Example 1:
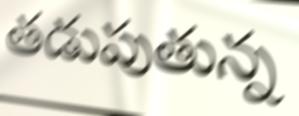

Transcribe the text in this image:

తడుపుతున్న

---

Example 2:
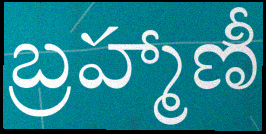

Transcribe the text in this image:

బ్రహ్మాణీ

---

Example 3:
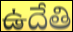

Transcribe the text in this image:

ఉదేతి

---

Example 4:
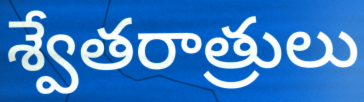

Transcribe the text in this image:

శ్వేతరాత్రులు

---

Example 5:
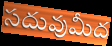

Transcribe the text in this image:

సదువుమీద